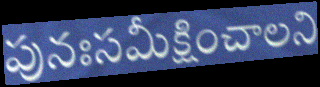
పునఃసమీక్షించాలని